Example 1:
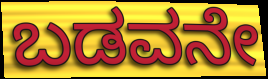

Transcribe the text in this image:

ಬಡವನೇ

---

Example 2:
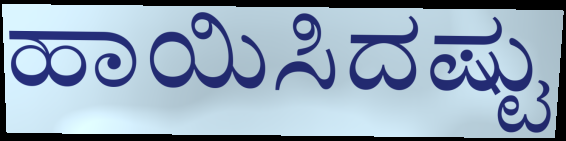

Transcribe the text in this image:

ಹಾಯಿಸಿದಷ್ಟು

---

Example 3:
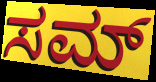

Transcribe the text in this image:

ಸಮ್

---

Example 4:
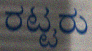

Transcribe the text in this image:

ರಟ್ಟರು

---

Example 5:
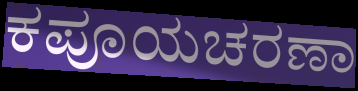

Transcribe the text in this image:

ಕಪೂಯಚರಣಾ